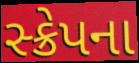
સ્ક્રેપના